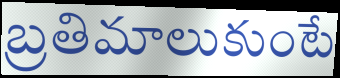
బ్రతిమాలుకుంటే